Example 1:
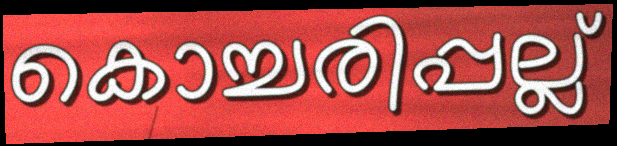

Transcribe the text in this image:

കൊച്ചരിപ്പല്ല്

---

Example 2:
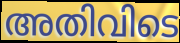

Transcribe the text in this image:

അതിവിടെ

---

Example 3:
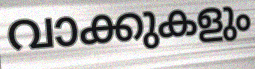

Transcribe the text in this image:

വാക്കുകളും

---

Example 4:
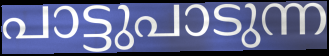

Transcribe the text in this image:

പാട്ടുപാടുന്ന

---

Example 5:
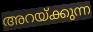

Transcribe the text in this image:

അറയ്ക്കുന്ന